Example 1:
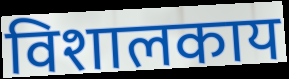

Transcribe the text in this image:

विशालकाय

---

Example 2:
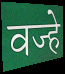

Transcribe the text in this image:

वज्हे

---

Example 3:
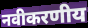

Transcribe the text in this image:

नवीकरणीय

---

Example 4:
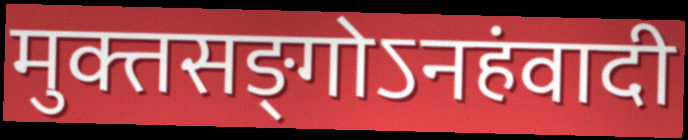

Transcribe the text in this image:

मुक्तसङ्गोऽनहंवादी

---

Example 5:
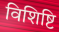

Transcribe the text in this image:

विशिष्टि